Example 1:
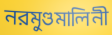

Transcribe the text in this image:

নরমুণ্ডমালিনী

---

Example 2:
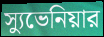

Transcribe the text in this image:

স্যুভেনিয়ার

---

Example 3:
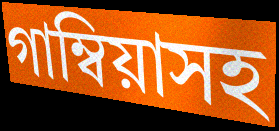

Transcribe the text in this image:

গাম্বিয়াসহ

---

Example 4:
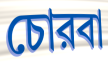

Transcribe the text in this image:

চোরবা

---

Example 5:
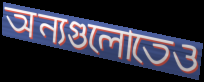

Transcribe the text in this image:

অন্যগুলোতেও